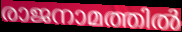
രാജനാമത്തിൽ